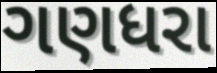
ગણધરા